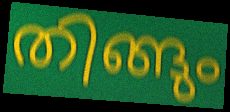
തിങ്ങും